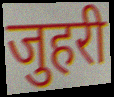
जुहरी